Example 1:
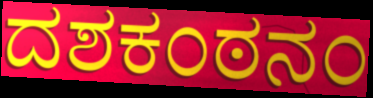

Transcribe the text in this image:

ದಶಕಂಠನಂ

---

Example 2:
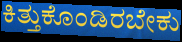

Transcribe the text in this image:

ಕಿತ್ತುಕೊಂಡಿರಬೇಕು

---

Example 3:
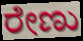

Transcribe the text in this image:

ರೇಣು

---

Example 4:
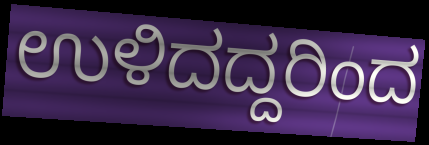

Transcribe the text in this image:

ಉಳಿದದ್ದರಿಂದ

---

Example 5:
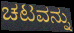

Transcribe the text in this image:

ಚಟವನ್ನು